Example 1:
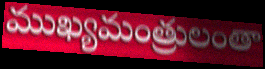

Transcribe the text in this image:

ముఖ్యమంత్రులంతా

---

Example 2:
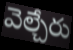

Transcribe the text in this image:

వెల్చేరు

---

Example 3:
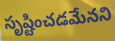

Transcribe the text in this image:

సృష్టించడమేనని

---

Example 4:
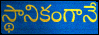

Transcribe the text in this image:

స్థానికంగానే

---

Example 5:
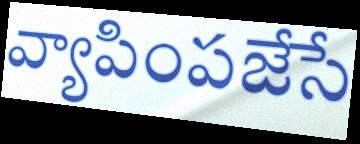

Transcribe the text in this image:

వ్యాపింపజేసే